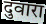
दुवारा